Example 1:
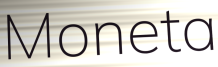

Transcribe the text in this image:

Moneta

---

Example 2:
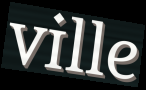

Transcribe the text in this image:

ville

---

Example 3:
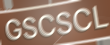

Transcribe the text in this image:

GSCSCL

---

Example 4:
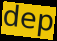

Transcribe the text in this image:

dep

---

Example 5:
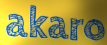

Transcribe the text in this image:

akaro